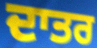
ਦਾਤਰ